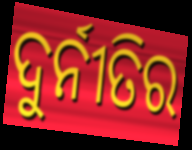
ଦୁର୍ନୀତିର